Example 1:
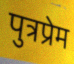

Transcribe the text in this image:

पुत्रप्रेम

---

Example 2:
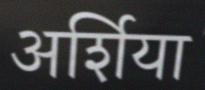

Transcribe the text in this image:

अर्शिया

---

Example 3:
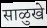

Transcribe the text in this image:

साळुखे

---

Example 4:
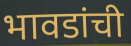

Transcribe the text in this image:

भावडांची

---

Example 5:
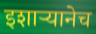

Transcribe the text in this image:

इशाऱ्यानेच